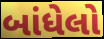
બાંધેલો